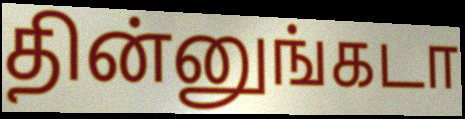
தின்னுங்கடா